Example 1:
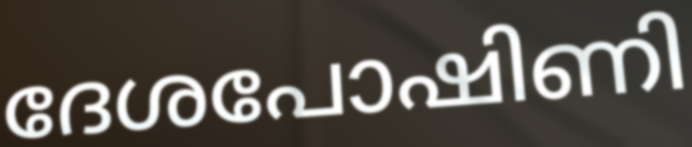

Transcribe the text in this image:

ദേശപോഷിണി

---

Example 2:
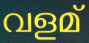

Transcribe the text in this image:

വളമ്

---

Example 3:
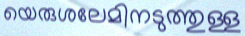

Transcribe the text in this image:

യെരുശലേമിനടുത്തുള്ള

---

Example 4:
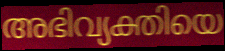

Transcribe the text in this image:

അഭിവ്യക്തിയെ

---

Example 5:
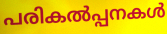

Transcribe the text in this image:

പരികൽപ്പനകൾ